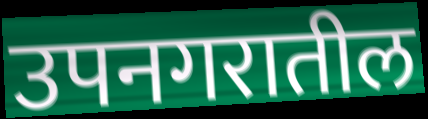
उपनगरातील